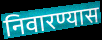
निवारण्यास